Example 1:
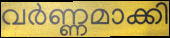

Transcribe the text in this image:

വർണ്ണമാക്കി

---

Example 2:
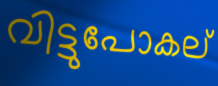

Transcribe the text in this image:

വിട്ടുപോകല്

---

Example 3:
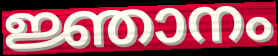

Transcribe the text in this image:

ജ്ഞാനം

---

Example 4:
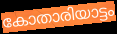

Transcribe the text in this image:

കോതാരിയാട്ടം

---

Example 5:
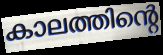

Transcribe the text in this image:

കാലത്തിന്റെ